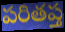
పరితప్త